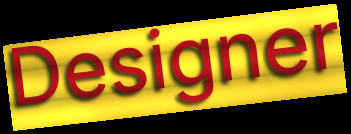
Designer